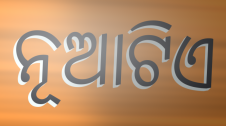
ନୂଆଟିଏ